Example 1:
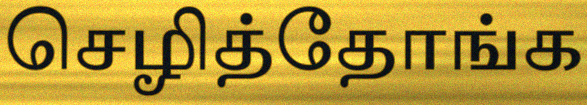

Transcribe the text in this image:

செழித்தோங்க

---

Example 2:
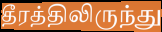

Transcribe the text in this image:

தீரத்திலிருந்து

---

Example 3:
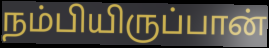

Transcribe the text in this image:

நம்பியிருப்பான்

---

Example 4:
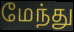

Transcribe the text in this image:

மேந்து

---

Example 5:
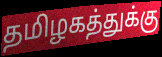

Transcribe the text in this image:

தமிழகத்துக்கு